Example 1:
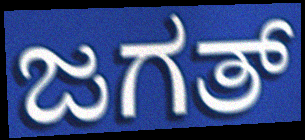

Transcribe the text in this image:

ಜಗತ್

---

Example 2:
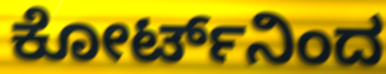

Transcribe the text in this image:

ಕೋರ್ಟ್‌ನಿಂದ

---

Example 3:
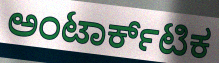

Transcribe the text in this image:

ಅಂಟಾರ್ಕ್‍ಟಿಕ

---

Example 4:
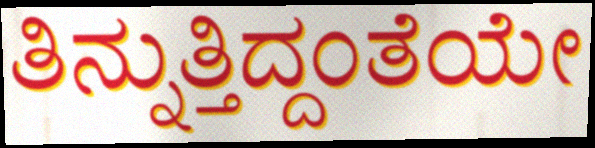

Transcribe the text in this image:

ತಿನ್ನುತ್ತಿದ್ದಂತೆಯೇ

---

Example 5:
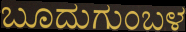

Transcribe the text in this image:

ಬೂದುಗುಂಬಳ